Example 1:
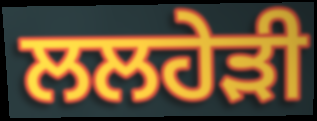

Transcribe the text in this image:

ਲਲਹੇੜੀ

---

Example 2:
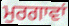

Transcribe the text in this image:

ਮੁਰਗਾਵਾਂ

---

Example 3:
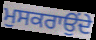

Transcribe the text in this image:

ਮੁਸਕਰਾਉਂਦੇ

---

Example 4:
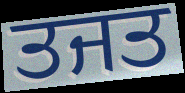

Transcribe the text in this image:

ਤਜਤ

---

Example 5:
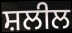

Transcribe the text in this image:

ਸ਼ਲੀਲ